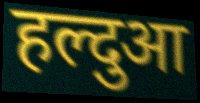
हल्दुआ